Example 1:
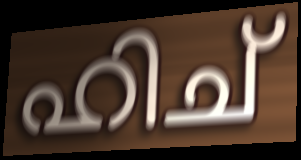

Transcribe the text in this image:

ഹിച്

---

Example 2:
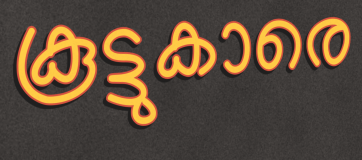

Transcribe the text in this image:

കൂട്ടുകാരെ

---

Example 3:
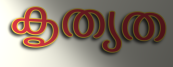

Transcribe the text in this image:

കൃത്യത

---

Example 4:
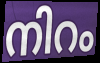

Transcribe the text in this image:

നിറം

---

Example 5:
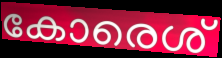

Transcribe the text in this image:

കോരെശ്